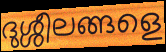
ദുശ്ശീലങ്ങളെ